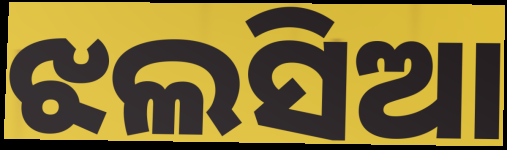
ଝଲସିଆ